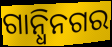
ଗାନ୍ଧିନଗର